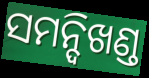
ସମନ୍ଦିଖଣ୍ଡ